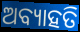
ଅବ୍ୟାହତି